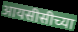
आयसीसीच्या